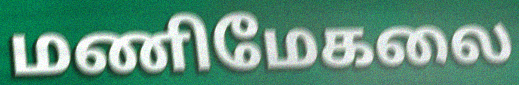
மணிமேகலை